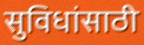
सुविधांसाठी